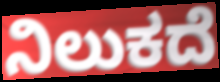
ನಿಲುಕದೆ